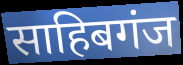
साहिबगंज